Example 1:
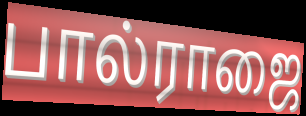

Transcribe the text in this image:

பால்ராஜை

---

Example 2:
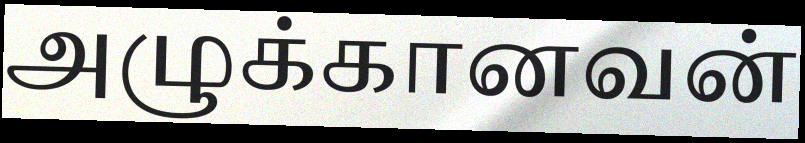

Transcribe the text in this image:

அழுக்கானவன்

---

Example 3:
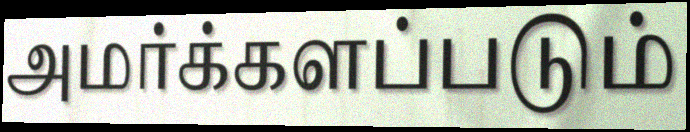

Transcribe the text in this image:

அமர்க்களப்படும்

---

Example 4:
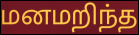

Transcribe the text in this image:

மனமறிந்த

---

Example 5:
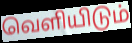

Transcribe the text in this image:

வெளியிடும்